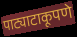
पाट्याटाकूपणे